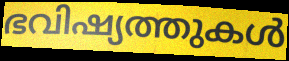
ഭവിഷ്യത്തുകൾ